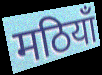
मठियाँ